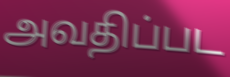
அவதிப்பட